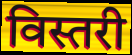
विस्तरी